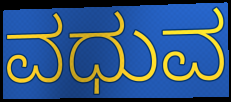
ವಧುವ